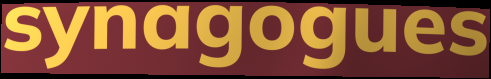
synagogues